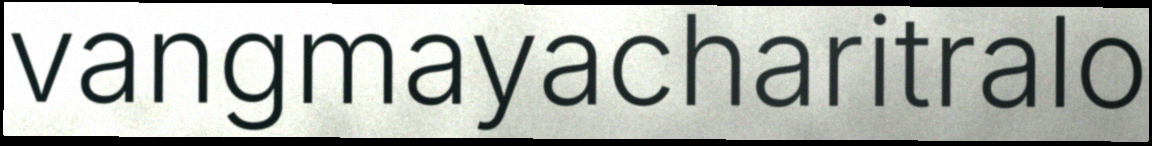
vangmayacharitralo